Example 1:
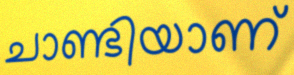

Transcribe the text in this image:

ചാണ്ടിയാണ്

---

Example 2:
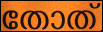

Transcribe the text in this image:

തോത്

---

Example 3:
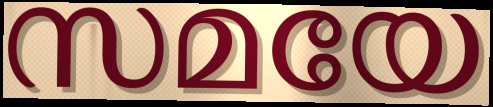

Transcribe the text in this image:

സമയേ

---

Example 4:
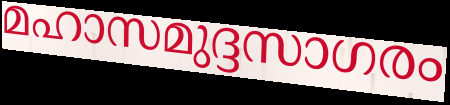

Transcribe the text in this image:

മഹാസമുദ്ദസാഗരം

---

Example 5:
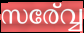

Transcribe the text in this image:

സര്വ്വേ